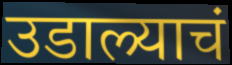
उडाल्याचं